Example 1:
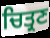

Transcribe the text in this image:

ਚਿਤ੍ਰਣ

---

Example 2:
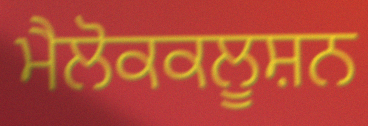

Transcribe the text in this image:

ਮੈਲੋਕਕਲੂਸ਼ਨ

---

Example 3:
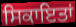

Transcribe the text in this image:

ਸਿਕਾਇਤਾਂ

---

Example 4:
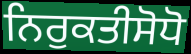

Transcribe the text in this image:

ਨਿਰੁਕਤੀਸੋਧੋ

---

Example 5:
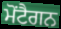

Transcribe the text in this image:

ਮੋਂਟੈਗਨ